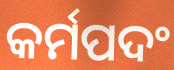
କର୍ମପଦଂ